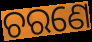
ଚରଣେ